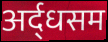
अर्द्धसम